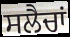
ਸਲੈਚਾਂ